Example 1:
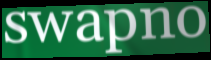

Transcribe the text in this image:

swapno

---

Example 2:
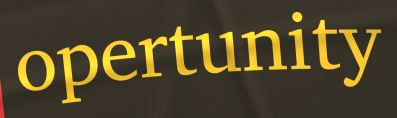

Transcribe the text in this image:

opertunity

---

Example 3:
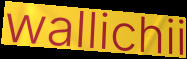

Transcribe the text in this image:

wallichii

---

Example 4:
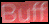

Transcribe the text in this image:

Buff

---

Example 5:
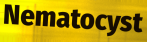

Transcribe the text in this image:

Nematocyst